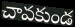
చావకుండ